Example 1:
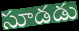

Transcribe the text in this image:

సూడడు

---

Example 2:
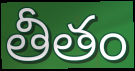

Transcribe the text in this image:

తీతం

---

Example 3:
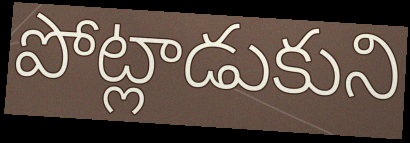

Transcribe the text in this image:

పోట్లాడుకుని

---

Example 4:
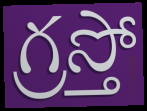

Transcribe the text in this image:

గ్రస్తో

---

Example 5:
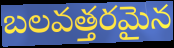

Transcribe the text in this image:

బలవత్తరమైన